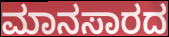
ಮಾನಸಾರದ